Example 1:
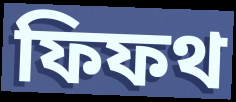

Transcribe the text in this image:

ফিফথ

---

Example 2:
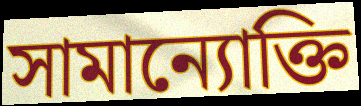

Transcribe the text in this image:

সামান্যোক্তি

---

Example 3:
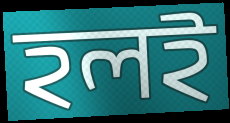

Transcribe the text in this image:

হলই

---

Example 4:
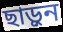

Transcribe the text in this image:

ছাড়ুন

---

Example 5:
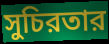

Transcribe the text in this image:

সুচিরতার